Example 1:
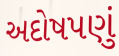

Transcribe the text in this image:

અદોષપણું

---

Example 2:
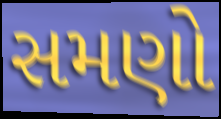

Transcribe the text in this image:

સમણો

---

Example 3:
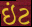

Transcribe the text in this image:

ઇંટ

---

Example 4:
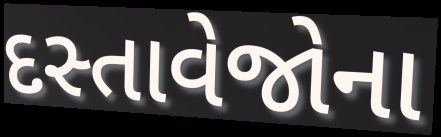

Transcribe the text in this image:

દસ્તાવેજોના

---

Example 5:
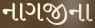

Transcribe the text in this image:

નાગજીના